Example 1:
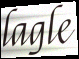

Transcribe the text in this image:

lagle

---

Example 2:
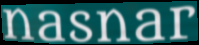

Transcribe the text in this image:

nasnar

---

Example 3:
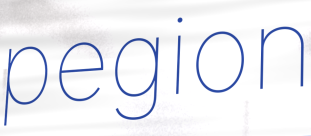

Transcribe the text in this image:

pegion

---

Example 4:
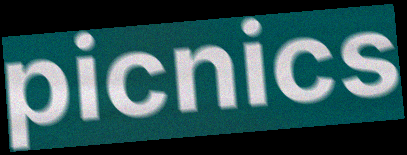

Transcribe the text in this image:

picnics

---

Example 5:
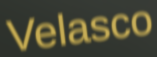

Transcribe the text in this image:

Velasco